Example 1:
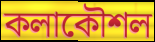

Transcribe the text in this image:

কলাকৌশল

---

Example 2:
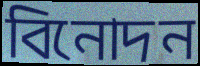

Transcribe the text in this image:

বিনোদন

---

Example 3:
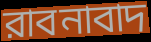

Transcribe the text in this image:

রাবনাবাদ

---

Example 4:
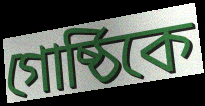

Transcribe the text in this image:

গোষ্ঠিকে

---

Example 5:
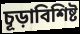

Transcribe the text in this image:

চূড়াবিশিষ্ট